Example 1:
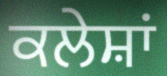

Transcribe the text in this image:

ਕਲੇਸ਼ਾਂ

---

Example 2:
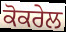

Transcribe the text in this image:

ਕੋਕਰੇਲ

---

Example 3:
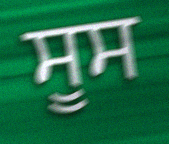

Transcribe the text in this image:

ਸੂਸ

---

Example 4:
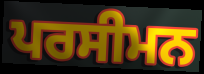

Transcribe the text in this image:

ਪਰਸੀਮਨ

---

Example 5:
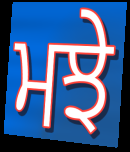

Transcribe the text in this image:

ਮਝੇ